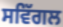
ਸਵਿੱਗਲ